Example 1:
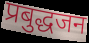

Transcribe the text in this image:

प्रबुद्धजन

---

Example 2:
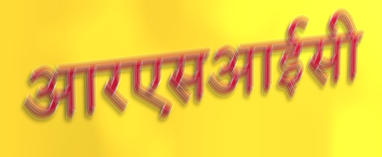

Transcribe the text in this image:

आरएसआईसी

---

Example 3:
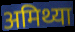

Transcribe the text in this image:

अमिथ्या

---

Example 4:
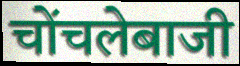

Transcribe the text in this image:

चोंचलेबाजी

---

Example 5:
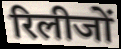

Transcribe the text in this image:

रिलीजों